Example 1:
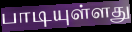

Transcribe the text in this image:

பாடியுள்ளது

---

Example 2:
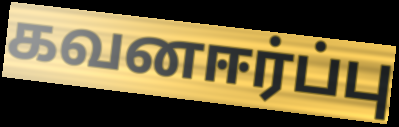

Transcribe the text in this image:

கவனஈர்ப்பு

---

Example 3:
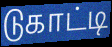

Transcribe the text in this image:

டுகாட்டி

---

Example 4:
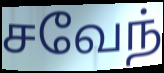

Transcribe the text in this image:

சவேந்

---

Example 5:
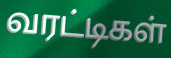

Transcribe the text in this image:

வரட்டிகள்